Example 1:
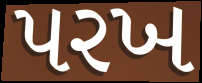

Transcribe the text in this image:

પરખ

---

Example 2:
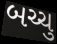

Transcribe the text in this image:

બચ્ચુ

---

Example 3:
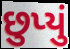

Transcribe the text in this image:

છુપ્યું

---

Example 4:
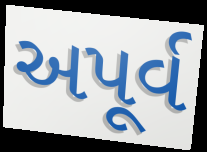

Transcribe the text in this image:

અપૂર્વ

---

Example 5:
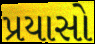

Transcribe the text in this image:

પ્રયાસો